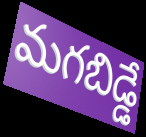
మగబిడ్డే